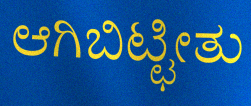
ಆಗಿಬಿಟ್ಟೀತು